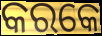
କରକେ